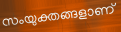
സംയുക്തങ്ങളാണ്